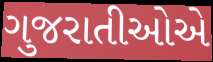
ગુજરાતીઓએ